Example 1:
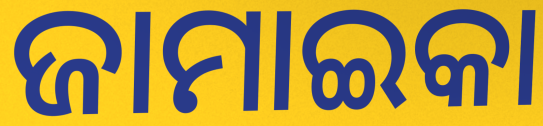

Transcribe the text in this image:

ଜାମାଇକା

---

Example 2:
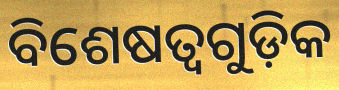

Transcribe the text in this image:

ବିଶେଷତ୍ୱଗୁଡ଼ିକ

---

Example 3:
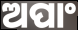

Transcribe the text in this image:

ଅପାଂ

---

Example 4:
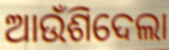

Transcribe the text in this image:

ଆଉଁଶିଦେଲା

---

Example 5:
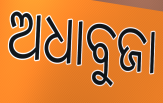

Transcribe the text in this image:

ଅଧାବୁଜା